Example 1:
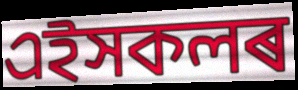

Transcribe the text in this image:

এইসকলৰ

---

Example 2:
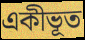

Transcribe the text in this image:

একীভূত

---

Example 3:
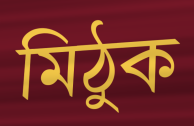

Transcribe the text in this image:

মিঠুক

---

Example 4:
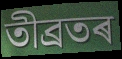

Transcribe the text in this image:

তীব্ৰতৰ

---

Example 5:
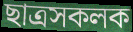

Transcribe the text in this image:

ছাত্ৰসকলক